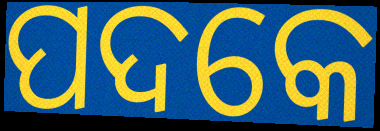
ପଦକେ